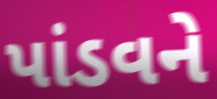
પાંડવને